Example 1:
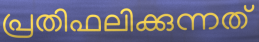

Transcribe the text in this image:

പ്രതിഫലിക്കുന്നത്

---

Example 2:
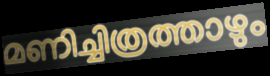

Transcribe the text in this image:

മണിച്ചിത്രത്താഴും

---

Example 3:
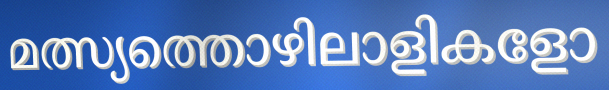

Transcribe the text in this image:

മത്സ്യത്തൊഴിലാളികളോ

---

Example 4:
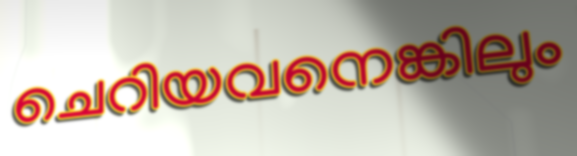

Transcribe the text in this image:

ചെറിയവനെങ്കിലും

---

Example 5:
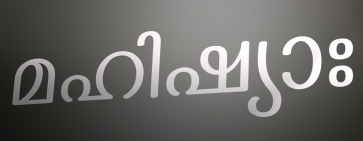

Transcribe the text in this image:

മഹിഷ്യാഃ